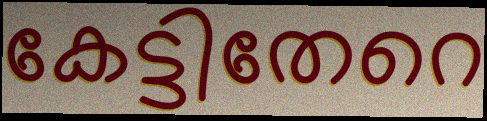
കേട്ടിതേറെ